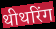
थीथरिंग